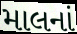
માલનાં